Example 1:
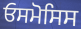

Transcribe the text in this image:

ਓਸਮੋਸਿਸ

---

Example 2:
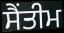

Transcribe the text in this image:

ਸੈਂਤੀਮ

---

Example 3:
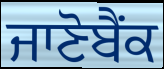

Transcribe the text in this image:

ਜਾਣੋਬੈਂਕ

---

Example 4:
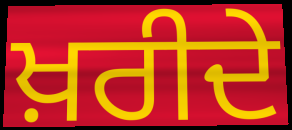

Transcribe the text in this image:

ਖ਼ਰੀਦੇ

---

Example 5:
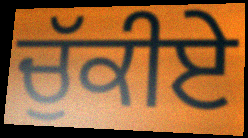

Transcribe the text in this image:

ਚੁੱਕੀਏ